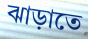
ঝাড়াতে